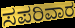
ಸಪರಿವಾರ